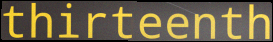
thirteenth